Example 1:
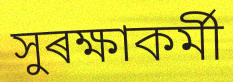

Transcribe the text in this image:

সুৰক্ষাকৰ্মী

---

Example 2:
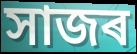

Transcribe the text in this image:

সাজৰ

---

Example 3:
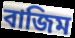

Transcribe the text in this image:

বাজিম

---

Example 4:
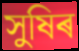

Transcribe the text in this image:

সুষিৰ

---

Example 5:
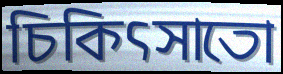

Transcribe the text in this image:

চিকিৎসাতো